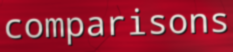
comparisons